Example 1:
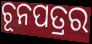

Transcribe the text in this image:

ଚୂନପତ୍ରର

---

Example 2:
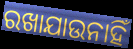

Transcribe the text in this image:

ରଖାଯାଉନାହିଁ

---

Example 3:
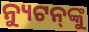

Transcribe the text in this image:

ନ୍ୟୁଟନ୍‌ଙ୍କୁ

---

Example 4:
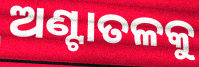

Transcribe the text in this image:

ଅଣ୍ଟାତଳକୁ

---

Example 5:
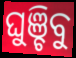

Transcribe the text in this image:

ଘୁଞ୍ଚିବୁ